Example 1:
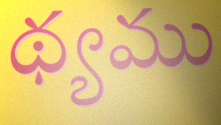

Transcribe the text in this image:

థ్యము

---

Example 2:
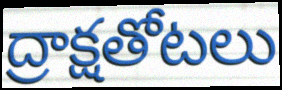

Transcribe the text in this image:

ద్రాక్షతోటలు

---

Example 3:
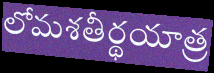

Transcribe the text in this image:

లోమశతీర్థయాత్ర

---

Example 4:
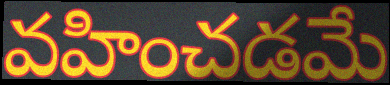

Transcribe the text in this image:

వహించడమే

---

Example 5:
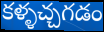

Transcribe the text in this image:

కళ్ళచ్చగడం